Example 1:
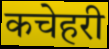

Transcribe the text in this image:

कचेहरी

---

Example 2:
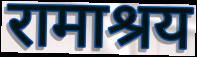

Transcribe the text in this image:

रामाश्रय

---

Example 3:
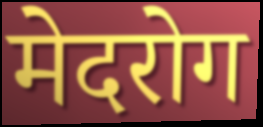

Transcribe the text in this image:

मेदरोग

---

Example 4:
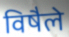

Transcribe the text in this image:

विषैले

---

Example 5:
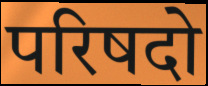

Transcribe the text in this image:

परिषदो